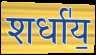
शर्धा॑य॒